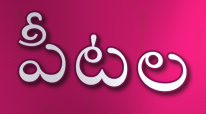
పీటల